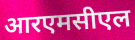
आरएमसीएल